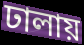
ঢালায়